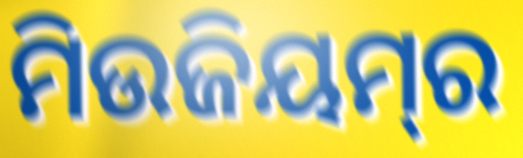
ମିଉଜିୟମ୍‌ର